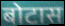
बोटास